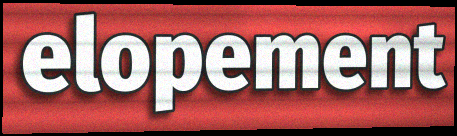
elopement